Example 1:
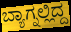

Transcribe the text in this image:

ಬ್ಯಾಗ್ನಲ್ಲಿದ್ದ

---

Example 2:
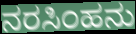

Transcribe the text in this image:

ನರಸಿಂಹನು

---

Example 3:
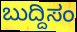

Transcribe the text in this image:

ಬುದ್ದಿಸಂ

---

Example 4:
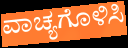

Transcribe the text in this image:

ವಾಚ್ಯಗೊಳಿಸಿ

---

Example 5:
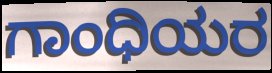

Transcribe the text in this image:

ಗಾಂಧಿಯರ